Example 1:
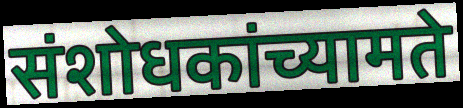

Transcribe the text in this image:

संशोधकांच्यामते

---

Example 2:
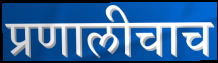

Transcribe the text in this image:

प्रणालीचाच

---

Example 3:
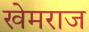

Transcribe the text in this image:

खेमराज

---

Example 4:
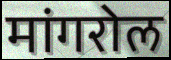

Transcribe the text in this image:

मांगरोल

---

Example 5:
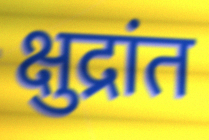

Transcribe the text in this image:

क्षुद्रांत